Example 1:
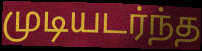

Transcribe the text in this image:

முடியடர்ந்த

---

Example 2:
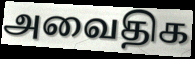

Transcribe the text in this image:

அவைதிக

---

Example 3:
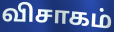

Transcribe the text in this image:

விசாகம்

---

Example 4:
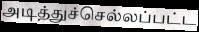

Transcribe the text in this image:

அடித்துச்செல்லப்பட்ட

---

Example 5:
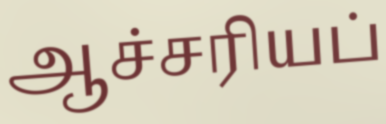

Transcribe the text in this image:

ஆச்சரியப்